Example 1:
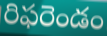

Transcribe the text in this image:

రిఫరెండం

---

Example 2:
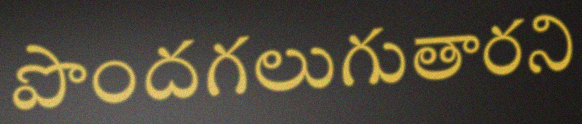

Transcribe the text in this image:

పొందగలుగుతారని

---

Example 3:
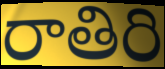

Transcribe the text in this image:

రాతిరి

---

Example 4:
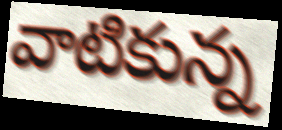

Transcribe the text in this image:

వాటికున్న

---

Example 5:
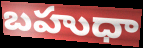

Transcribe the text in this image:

బహుధా